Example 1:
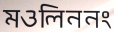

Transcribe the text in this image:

মওলিননং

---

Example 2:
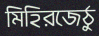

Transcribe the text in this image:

মিহিরজেঠু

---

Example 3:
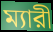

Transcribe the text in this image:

ম্যারী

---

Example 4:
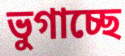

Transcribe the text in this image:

ভুগাচ্ছে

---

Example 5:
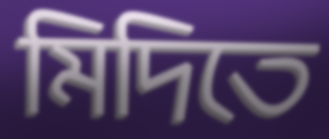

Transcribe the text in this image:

মিদিতে